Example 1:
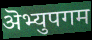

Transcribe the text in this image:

ऄभ्युपगम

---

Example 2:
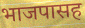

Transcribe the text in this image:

भाजपासह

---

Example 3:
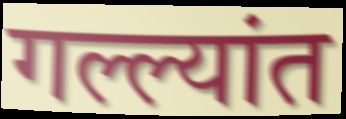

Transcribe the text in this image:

गल्ल्यांत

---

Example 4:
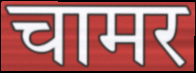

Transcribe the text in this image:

चामर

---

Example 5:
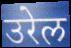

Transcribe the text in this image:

उरेल